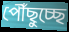
পৌঁছুচ্ছে